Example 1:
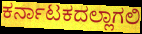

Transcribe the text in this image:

ಕರ್ನಾಟಕದಲ್ಲಾಗಲಿ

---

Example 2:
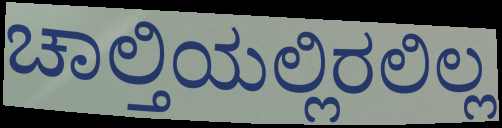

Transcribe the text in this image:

ಚಾಲ್ತಿಯಲ್ಲಿರಲಿಲ್ಲ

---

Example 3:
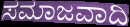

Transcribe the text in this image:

ಸಮಾಜವಾದಿ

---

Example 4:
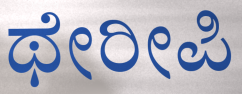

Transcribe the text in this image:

ಥೇರೀಪಿ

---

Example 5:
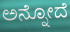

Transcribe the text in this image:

ಅನ್ನೋದೆ